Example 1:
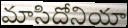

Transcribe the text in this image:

మాసిదోనియా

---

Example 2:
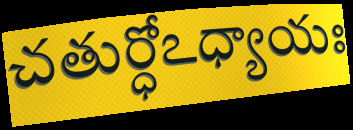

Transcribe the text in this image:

చతుర్ధోఽధ్యాయః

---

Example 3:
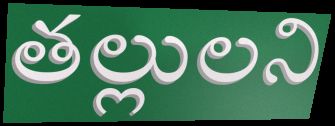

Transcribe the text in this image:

తల్లులని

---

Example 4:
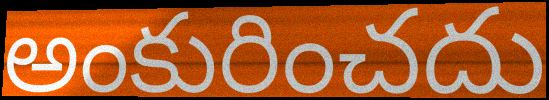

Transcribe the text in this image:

అంకురించదు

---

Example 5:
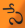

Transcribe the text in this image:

సే